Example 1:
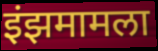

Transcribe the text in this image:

इंझमामला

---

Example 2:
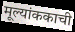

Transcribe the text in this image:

मूल्यांककाची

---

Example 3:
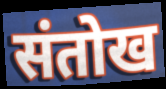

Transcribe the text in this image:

संतोख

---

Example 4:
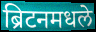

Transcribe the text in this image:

ब्रिटनमधले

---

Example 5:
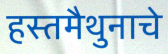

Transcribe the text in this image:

हस्तमैथुनाचे